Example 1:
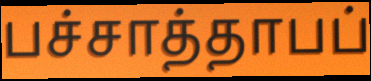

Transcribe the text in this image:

பச்சாத்தாபப்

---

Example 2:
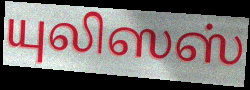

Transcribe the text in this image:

யுலிஸஸ்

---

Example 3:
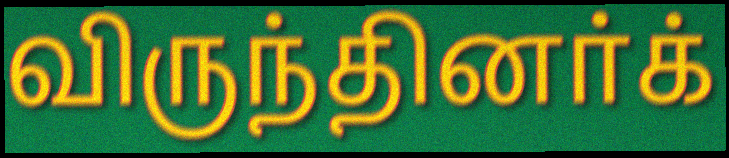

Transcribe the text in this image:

விருந்தினர்க்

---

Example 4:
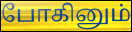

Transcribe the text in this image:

போகினும்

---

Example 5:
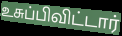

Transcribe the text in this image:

உசுப்பிவிட்டார்